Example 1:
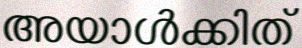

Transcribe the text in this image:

അയാൾക്കിത്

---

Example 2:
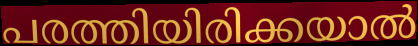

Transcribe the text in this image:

പരത്തിയിരിക്കയാൽ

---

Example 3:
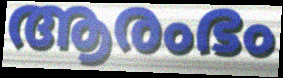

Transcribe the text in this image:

ആരംഭം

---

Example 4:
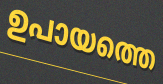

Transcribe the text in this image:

ഉപായത്തെ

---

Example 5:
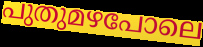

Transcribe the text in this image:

പുതുമഴപോലെ